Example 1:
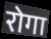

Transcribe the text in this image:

रोगा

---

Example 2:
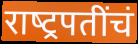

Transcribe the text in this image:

राष्ट्रपतींचं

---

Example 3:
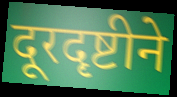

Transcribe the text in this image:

दूरदृष्टीने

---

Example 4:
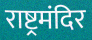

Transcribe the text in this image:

राष्ट्रमंदिर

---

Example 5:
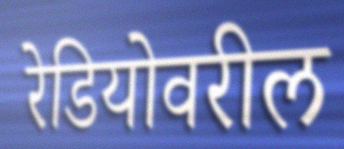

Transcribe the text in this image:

रेडियोवरील